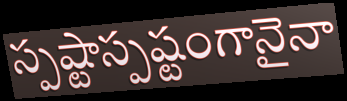
స్పష్టాస్పష్టంగానైనా